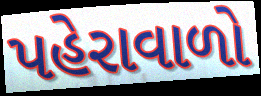
પહેરાવાળો